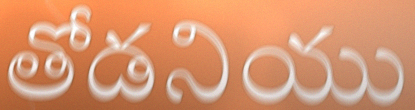
తోడనియు